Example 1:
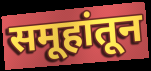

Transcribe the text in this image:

समूहांतून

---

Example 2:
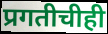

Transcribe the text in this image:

प्रगतीचीही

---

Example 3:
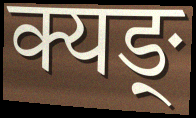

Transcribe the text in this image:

क्यङ्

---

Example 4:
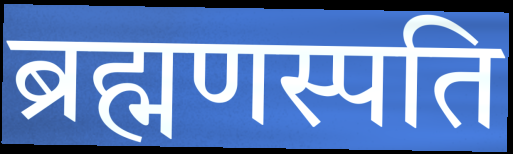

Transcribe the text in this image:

ब्रह्मणस्पति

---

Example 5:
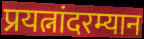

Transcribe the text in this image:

प्रयत्नांदरम्यान